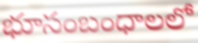
భూసంబంధాలలో